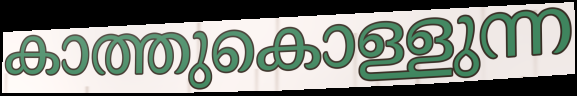
കാത്തുകൊള്ളുന്ന